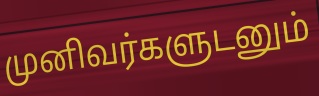
முனிவர்களுடனும்